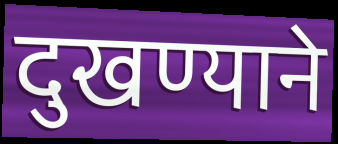
दुखण्याने